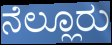
ನೆಲ್ಲೂರು